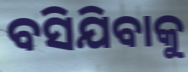
ବସିଯିବାକୁ